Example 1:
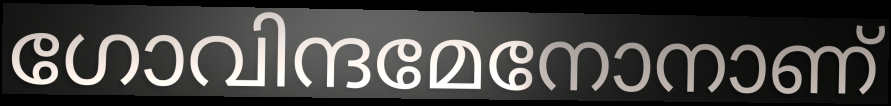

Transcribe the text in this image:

ഗോവിന്ദമേനോനാണ്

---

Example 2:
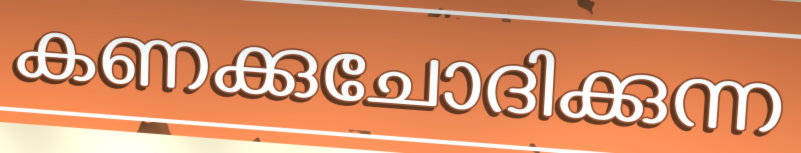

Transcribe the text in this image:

കണക്കുചോദിക്കുന്ന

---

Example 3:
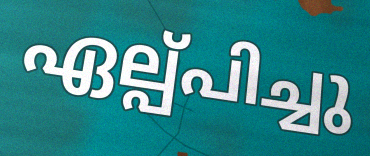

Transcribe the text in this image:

ഏല്പ്പിച്ചു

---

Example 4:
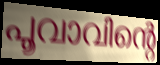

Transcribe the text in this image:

പൂവാവിന്റെ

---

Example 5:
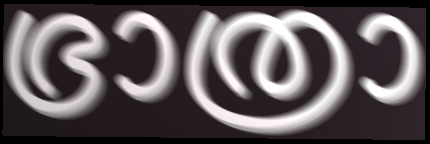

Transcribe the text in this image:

ഭ്രാത്രാ